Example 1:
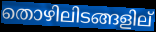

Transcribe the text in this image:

തൊഴിലിടങ്ങളില്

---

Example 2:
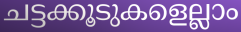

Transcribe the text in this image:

ചട്ടക്കൂടുകളെല്ലാം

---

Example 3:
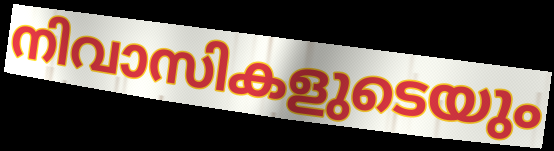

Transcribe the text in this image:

നിവാസികളുടെയും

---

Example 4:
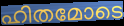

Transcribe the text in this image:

ഹിതമോടെ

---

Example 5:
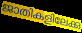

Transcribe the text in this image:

ജാതികളിലേക്കു